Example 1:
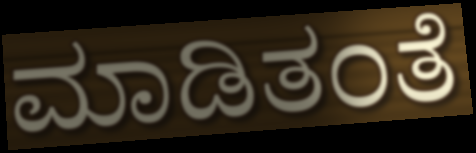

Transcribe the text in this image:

ಮಾಡಿತಂತೆ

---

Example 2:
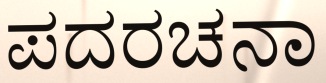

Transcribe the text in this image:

ಪದರಚನಾ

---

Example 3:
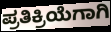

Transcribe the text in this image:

ಪ್ರತಿಕ್ರಿಯೆಗಾಗಿ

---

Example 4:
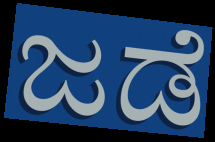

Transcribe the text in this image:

ಜಡೆ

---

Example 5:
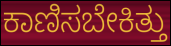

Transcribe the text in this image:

ಕಾಣಿಸಬೇಕಿತ್ತು